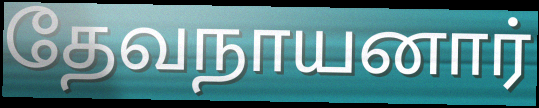
தேவநாயனார்